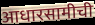
आधारसामीची